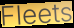
Fleets